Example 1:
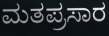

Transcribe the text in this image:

ಮತಪ್ರಸಾರ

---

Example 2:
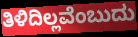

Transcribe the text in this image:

ತಿಳಿದಿಲ್ಲವೆಂಬುದು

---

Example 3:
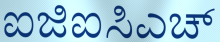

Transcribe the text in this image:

ಐಜಿಐಸಿಎಚ್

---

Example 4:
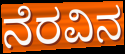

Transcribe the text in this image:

ನೆರವಿನ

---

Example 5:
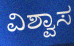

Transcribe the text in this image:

ವಿಶ್ವಾಸ